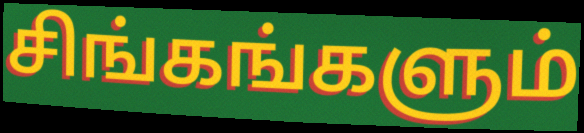
சிங்கங்களும்